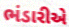
ભંડારીએ